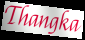
Thangka